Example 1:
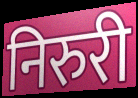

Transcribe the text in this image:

निरुरी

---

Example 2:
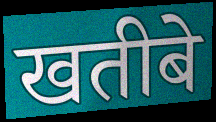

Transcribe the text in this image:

खतीबे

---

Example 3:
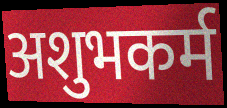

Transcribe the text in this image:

अशुभकर्म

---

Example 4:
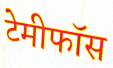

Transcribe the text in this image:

टेमीफॉस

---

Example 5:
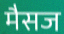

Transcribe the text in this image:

मैसज